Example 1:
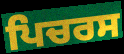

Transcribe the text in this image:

ਪਿਚਰਸ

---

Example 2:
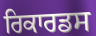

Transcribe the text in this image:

ਰਿਕਾਰਡਸ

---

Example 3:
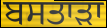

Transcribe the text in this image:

ਬਸਤਾੜਾ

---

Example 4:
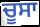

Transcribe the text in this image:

ਚੂਸਾ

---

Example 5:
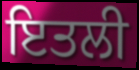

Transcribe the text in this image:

ਇਤਲੀ